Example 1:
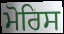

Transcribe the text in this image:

ਮੋਰਿਸ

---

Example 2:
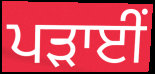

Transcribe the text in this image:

ਪੜਾਈਂ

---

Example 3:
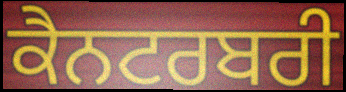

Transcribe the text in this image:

ਕੈਨਟਰਬਰੀ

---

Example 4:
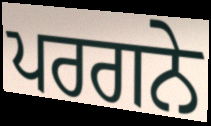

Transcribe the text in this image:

ਪਰਗਨੇ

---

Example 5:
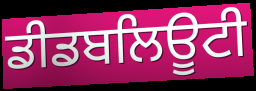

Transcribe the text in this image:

ਡੀਡਬਲਿਊਟੀ